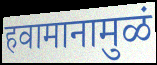
हवामानामुळं